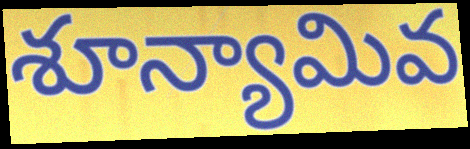
శూన్యామివ